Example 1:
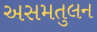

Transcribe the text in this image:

અસમતુલન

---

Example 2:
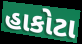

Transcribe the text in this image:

હાકોટા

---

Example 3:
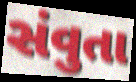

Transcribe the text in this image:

સંવુતા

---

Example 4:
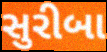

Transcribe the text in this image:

સુરીબા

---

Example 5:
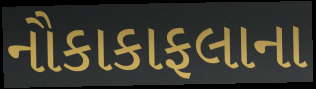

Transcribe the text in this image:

નૌકાકાફલાના